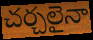
చర్చలైనా